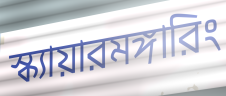
স্ক্যায়ারমঙ্গারিং